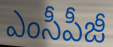
ఎంసీపీజీ